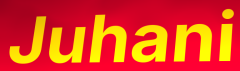
Juhani